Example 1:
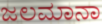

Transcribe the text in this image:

ಜಲಮಾನಾ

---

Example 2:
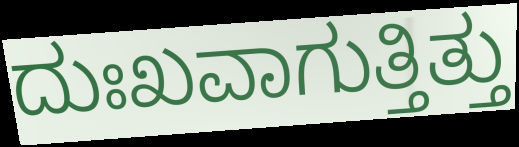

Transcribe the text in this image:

ದುಃಖವಾಗುತ್ತಿತ್ತು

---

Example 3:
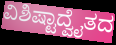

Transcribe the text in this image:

ವಿಶಿಷ್ಟಾದ್ವೈತದ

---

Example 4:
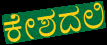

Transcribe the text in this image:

ಕೇಶದಲಿ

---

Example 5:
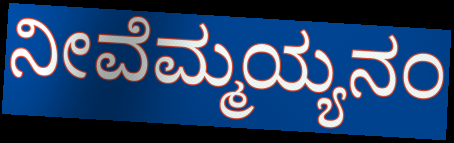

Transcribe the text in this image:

ನೀವೆಮ್ಮಯ್ಯನಂ